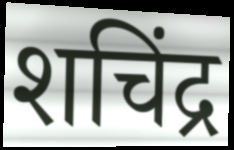
शचिंद्र